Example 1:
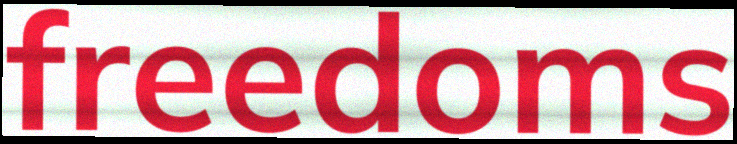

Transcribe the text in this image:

freedoms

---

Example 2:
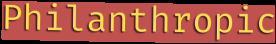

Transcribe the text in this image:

Philanthropic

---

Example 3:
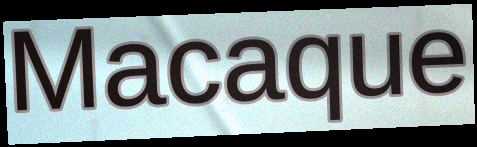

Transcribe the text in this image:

Macaque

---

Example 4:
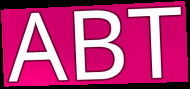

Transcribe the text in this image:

ABT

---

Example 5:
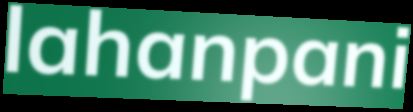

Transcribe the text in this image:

lahanpani